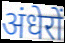
अंधेरों